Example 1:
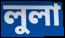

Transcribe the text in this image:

লুলা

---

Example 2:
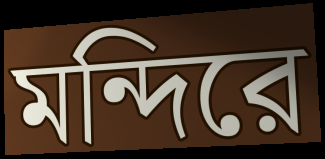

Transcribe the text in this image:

মন্দিরে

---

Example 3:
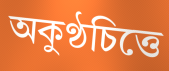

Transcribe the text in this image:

অকুণ্ঠচিত্তে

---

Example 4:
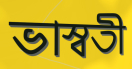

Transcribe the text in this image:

ভাস্বতী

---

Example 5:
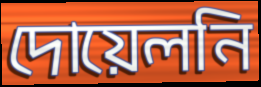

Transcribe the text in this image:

দোয়েলনি